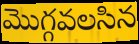
మొగ్గవలసిన